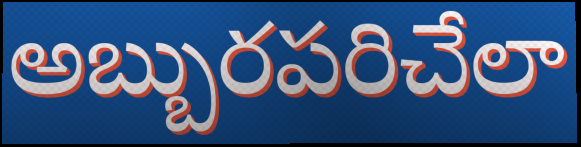
అబ్బురపరిచేలా